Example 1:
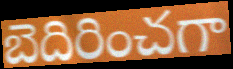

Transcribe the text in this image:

బెదిరించగా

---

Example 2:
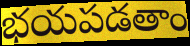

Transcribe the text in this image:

భయపడతాం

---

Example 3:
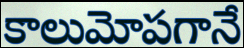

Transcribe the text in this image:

కాలుమోపగానే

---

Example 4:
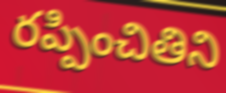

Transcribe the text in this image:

రప్పించితిని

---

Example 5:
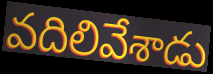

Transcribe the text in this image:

వదిలివేశాడు